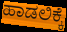
ಹಾಡಲಿಕ್ಕೆ